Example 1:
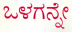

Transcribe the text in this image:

ಒಳಗನ್ನೇ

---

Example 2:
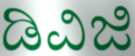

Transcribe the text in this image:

ಡಿವಿಜಿ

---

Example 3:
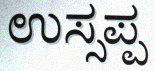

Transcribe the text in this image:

ಉಸ್ಸಪ್ಪ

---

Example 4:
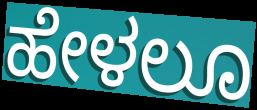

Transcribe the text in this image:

ಹೇಳಲೂ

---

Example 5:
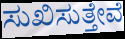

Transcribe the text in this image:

ಸುಖಿಸುತ್ತೇವೆ